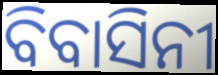
ବିବାସିନୀ